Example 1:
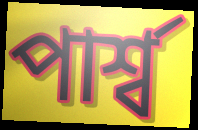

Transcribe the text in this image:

পার্শ্ব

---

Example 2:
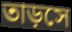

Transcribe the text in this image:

তাড়সে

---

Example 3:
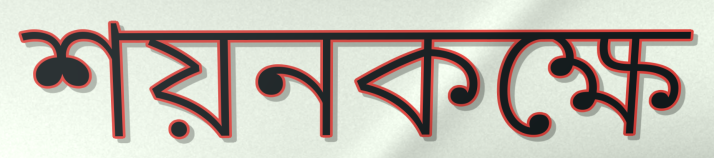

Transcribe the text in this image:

শয়নকক্ষে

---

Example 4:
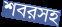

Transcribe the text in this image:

শবরসহ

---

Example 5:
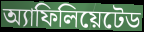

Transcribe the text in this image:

অ্যাফিলিয়েটেড